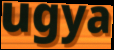
ugya